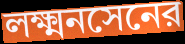
লক্ষ্মনসেনের